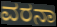
ವರನಾ